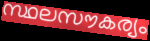
സ്ഥലസൗകര്യം